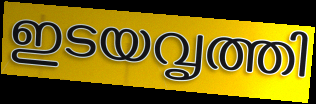
ഇടയവൃത്തി